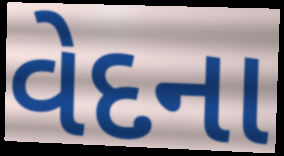
વેદના